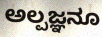
ಅಲ್ಪಜ್ಞನೂ